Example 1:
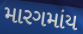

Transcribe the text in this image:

મારગમાંય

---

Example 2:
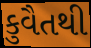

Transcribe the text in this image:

કુવૈતથી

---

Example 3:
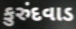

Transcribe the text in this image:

કુરુંદવાડ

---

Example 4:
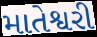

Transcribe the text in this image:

માતેશ્વરી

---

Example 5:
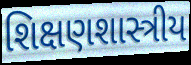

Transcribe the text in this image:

શિક્ષણશાસ્ત્રીય